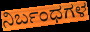
ನಿರ್ಬಂಧಗಳ